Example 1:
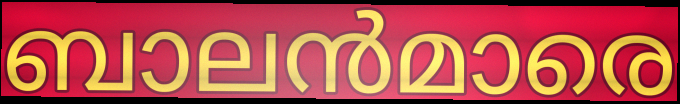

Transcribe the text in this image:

ബാലൻമാരെ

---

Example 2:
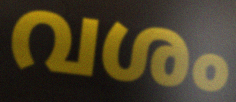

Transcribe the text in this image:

വശം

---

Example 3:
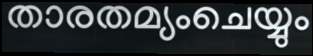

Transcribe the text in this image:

താരതമ്യംചെയ്യും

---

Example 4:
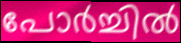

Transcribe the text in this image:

പോർച്ചിൽ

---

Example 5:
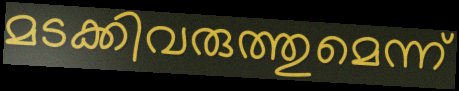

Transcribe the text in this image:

മടക്കിവരുത്തുമെന്ന്